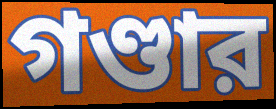
গণ্ডার